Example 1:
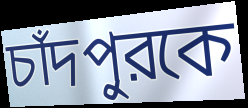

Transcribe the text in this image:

চাঁদপুরকে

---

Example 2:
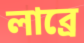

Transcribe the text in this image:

লাব্রে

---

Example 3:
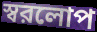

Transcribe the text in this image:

স্বরলোপ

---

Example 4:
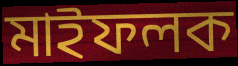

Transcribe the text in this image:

মাইফলক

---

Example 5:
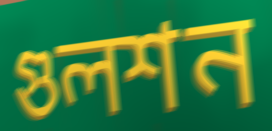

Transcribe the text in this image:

গুলশন